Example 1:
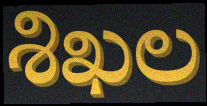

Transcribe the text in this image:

శిఖల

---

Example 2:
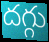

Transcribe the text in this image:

దగ్గు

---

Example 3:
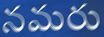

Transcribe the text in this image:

నమరు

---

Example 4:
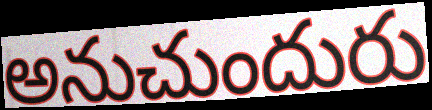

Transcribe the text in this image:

అనుచుందురు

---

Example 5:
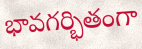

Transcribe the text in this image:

భావగర్భితంగా